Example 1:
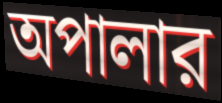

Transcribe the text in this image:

অপালার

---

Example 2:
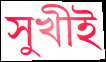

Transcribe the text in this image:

সুখীই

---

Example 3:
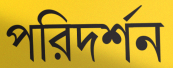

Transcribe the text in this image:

পরিদর্শন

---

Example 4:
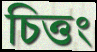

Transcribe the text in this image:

চিত্তং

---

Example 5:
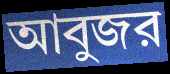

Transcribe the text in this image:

আবুজর